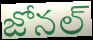
జోనల్